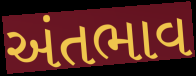
અંતભાવ